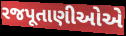
રજપૂતાણીઓએ